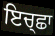
ਇਚ੍ਛਾ